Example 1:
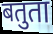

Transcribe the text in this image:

बतुता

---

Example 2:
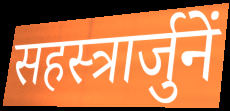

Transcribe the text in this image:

सहस्त्रार्जुनें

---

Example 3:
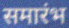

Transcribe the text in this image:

समारंभ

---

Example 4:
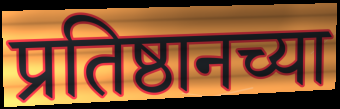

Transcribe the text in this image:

प्रतिष्ठानच्या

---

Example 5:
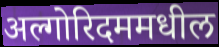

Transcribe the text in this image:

अल्गोरिदममधील